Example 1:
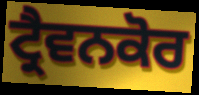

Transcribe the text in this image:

ਟ੍ਰੈਵਨਕੋਰ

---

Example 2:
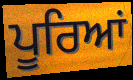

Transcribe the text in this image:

ਪੂਰਿਆਂ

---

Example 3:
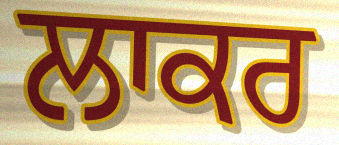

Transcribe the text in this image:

ਲਾਕਰ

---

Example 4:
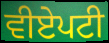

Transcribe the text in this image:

ਵੀਏਪਟੀ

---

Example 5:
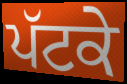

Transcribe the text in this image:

ਪੱਟਕੇ